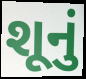
શૂનું